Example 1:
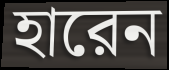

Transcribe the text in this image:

হারেন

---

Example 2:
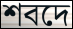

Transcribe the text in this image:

শবদে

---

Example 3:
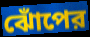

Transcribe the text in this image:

ঝোঁপের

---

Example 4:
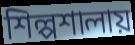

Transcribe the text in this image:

শিল্পশালায়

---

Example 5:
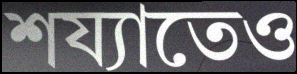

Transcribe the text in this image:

শয্যাতেও